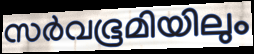
സർവഭൂമിയിലും